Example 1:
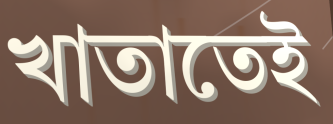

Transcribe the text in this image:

খাতাতেই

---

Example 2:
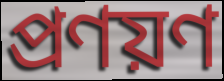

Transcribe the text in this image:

প্রণয়ণ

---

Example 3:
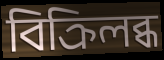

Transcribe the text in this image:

বিক্রিলব্ধ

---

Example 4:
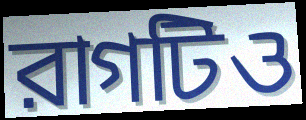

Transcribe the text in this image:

রাগটিও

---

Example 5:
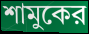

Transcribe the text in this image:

শামুকের